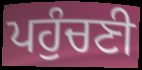
ਪਹੁੰਚਣੀ